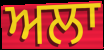
ਅਲਾ